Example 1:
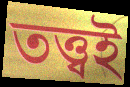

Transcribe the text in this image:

তত্ত্বই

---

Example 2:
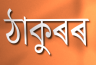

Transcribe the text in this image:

ঠাকুৰৰ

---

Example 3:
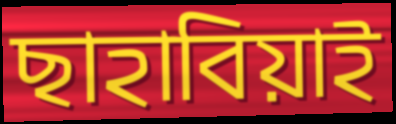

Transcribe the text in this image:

ছাহাবিয়াই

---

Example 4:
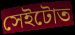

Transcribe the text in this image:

সেইটোত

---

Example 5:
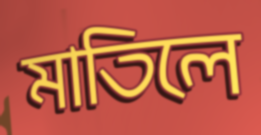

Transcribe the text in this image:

মাতিলে